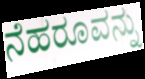
ನೆಹರೂವನ್ನು